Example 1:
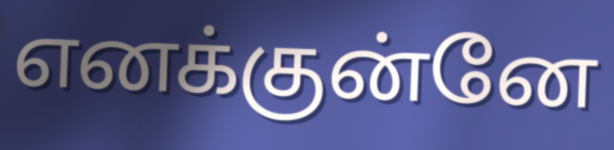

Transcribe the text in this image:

எனக்குன்னே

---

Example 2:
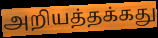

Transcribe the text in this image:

அறியத்தக்கது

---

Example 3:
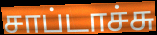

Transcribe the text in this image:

சாப்டாச்சு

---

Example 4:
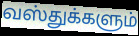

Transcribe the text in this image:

வஸ்துக்களும்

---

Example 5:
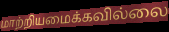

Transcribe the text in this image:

மாற்றியமைக்கவில்லை